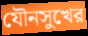
যৌনসুখের